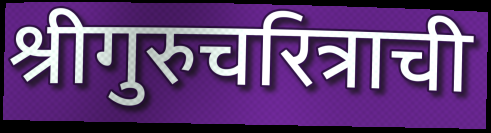
श्रीगुरुचरित्राची